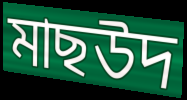
মাছউদ